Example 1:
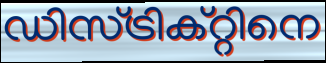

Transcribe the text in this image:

ഡിസ്ട്രിക്റ്റിനെ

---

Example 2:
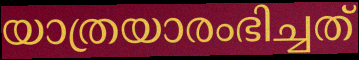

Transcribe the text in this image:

യാത്രയാരംഭിച്ചത്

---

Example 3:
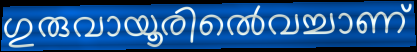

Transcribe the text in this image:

ഗുരുവായൂരിൽെവച്ചാണ്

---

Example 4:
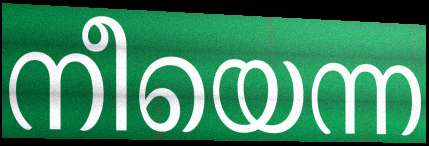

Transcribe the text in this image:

നീയെന്ന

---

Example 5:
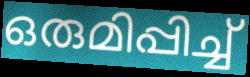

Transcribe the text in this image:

ഒരുമിപ്പിച്ച്